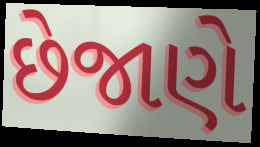
છેજાણે